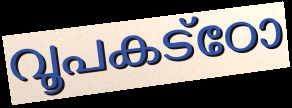
വൂപകട്ഠോ